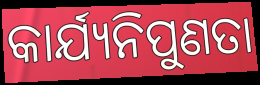
କାର୍ଯ୍ୟନିପୁଣତା